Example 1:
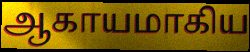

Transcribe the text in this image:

ஆகாயமாகிய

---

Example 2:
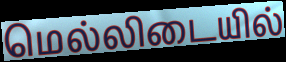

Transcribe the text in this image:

மெல்லிடையில்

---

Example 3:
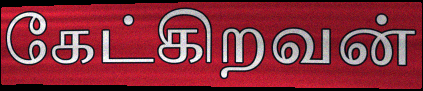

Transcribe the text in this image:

கேட்கிறவன்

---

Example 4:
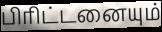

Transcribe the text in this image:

பிரிட்டனையும்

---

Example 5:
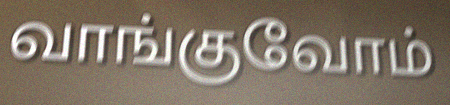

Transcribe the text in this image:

வாங்குவோம்